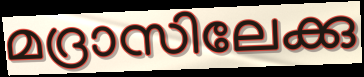
മദ്രാസിലേക്കു